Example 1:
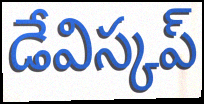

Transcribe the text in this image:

డేవిస్కప్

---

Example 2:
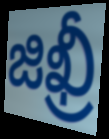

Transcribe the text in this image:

జిఖ్రీ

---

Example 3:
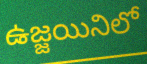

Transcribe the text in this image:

ఉజ్జయినిలో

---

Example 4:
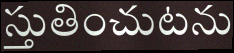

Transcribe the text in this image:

స్తుతించుటను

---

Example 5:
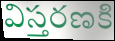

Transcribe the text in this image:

విస్తరణకి